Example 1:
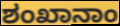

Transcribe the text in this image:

ಶಂಖಾನಾಂ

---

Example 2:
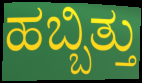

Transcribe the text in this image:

ಹಬ್ಬಿತ್ತು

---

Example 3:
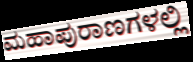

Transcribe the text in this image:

ಮಹಾಪುರಾಣಗಳಲ್ಲಿ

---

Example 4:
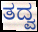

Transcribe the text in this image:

ತದ್ವ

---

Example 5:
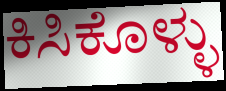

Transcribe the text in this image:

ಕಿಸಿಕೊಳ್ಳು